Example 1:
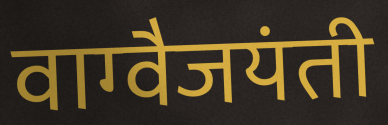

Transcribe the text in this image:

वाग्वैजयंती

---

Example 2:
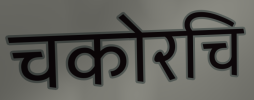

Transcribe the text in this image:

चकोरचि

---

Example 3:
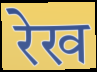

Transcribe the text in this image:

रेख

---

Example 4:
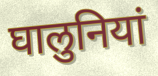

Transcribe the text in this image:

घालुनियां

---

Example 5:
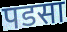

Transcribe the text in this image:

पडसा